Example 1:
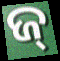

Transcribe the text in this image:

ଜ୍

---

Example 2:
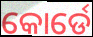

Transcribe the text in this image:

କୋର୍ଡେ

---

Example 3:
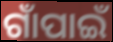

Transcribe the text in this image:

ଗାଁପାଇଁ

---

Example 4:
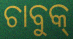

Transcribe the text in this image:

ଚାବୁକ୍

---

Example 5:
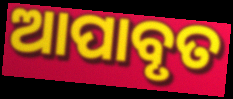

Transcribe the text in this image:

ଆପାବୃତ